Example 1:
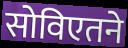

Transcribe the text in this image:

सोविएतने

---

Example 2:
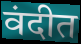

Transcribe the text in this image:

वंदीत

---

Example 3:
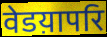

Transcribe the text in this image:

वेडय़ापरि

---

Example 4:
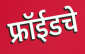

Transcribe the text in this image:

फ्रॉईडचे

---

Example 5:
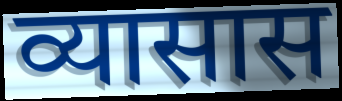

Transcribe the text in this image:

व्यासास